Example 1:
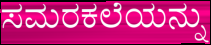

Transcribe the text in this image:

ಸಮರಕಲೆಯನ್ನು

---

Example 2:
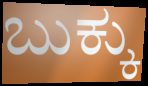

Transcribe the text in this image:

ಬುಕ್ಕು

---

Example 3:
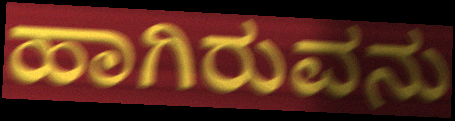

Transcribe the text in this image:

ಹಾಗಿರುವನು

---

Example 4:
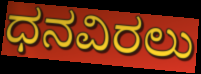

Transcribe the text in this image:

ಧನವಿರಲು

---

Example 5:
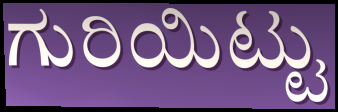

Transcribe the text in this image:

ಗುರಿಯಿಟ್ಟು